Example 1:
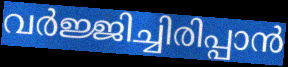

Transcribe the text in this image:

വർജ്ജിച്ചിരിപ്പാൻ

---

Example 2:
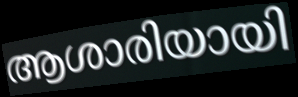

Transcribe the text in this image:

ആശാരിയായി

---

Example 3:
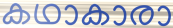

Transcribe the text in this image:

കഥാകാരാ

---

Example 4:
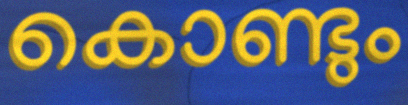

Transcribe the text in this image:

കൊണ്ടും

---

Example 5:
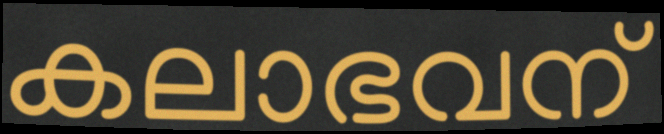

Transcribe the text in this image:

കലാഭവന്